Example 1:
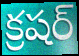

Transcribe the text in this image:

క్రషర్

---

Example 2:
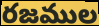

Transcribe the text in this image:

రజముల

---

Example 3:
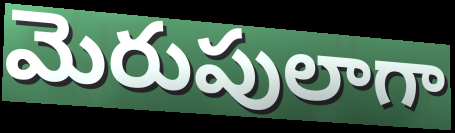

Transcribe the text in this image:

మెరుపులాగా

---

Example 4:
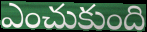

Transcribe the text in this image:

ఎంచుకుంది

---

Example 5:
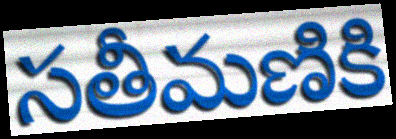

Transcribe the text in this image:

సతీమణికి